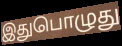
இதுபொழுது